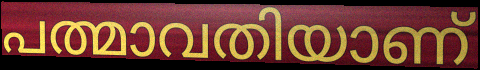
പത്മാവതിയാണ്